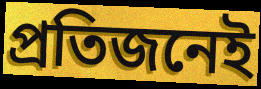
প্ৰতিজনেই